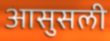
आसुसली